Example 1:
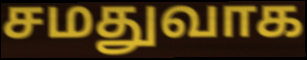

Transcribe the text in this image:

சமதுவாக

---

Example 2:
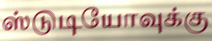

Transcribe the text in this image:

ஸ்டுடியோவுக்கு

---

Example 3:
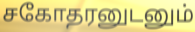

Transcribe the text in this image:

சகோதரனுடனும்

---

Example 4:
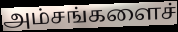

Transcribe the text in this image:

அம்சங்களைச்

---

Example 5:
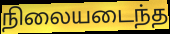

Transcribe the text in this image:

நிலையடைந்த